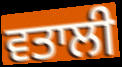
ਵਤਾਲੀ